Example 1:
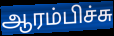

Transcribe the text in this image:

ஆரம்பிச்சு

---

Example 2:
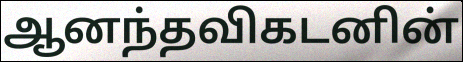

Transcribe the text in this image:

ஆனந்தவிகடனின்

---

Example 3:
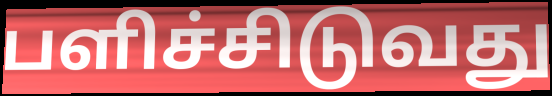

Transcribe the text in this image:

பளிச்சிடுவது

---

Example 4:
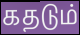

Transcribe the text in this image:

கதடும்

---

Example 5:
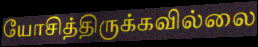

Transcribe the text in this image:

யோசித்திருக்கவில்லை